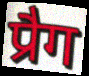
प्रैग